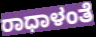
ರಾಧಾಳಂತೆ